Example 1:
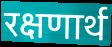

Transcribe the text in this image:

रक्षणार्थ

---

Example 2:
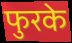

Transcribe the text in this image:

फुरके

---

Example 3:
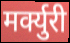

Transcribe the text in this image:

मर्क्युरी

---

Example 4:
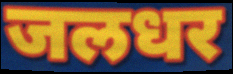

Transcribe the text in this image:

जलधर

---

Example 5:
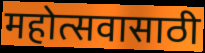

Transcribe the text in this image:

महोत्सवासाठी